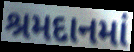
શ્રમદાનમાં